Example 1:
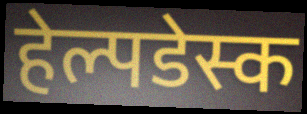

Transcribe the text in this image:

हेल्पडेस्क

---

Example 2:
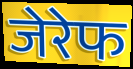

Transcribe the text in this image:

जेरेफ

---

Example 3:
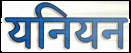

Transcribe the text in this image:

यनियन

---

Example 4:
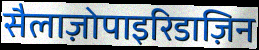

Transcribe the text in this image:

सैलाज़ोपाइरिडाज़िन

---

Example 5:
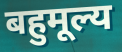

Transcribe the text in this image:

बहुमूल्य